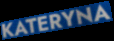
KATERYNA